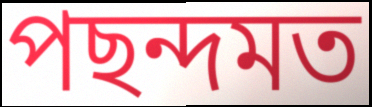
পছন্দমত